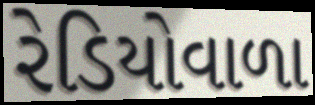
રેડિયોવાળા